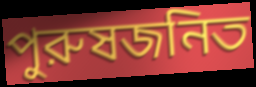
পুরুষজনিত